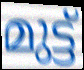
മുട്ട്